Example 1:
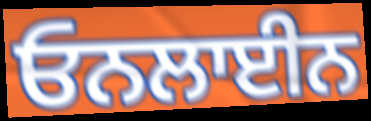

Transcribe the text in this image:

ਓਨਲਾਈਨ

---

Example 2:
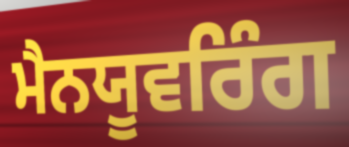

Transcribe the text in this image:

ਮੈਨਯੂਵਰਿੰਗ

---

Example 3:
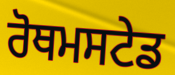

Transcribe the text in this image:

ਰੋਥਮਸਟੇਡ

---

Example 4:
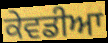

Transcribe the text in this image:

ਕੇਵਡੀਆ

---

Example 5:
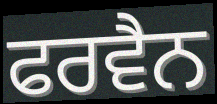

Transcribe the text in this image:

ਫਰਵੈਨ